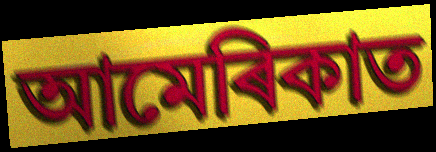
আমেৰিকাত